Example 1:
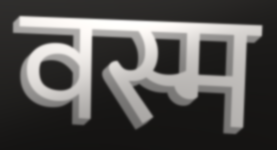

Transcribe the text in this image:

वस्म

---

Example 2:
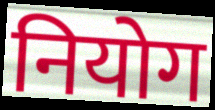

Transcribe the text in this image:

नियोग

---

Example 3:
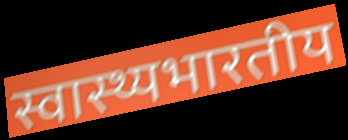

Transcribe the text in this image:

स्वास्थ्यभारतीय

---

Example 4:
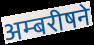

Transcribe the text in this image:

अम्बरीषने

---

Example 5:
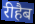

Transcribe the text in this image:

रीहैब